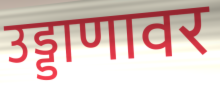
उड्डाणावर